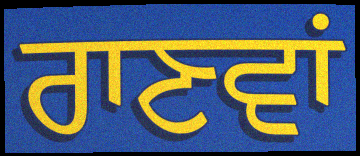
ਰਾਣਵਾਂ